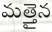
మత్తైన